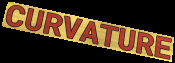
CURVATURE